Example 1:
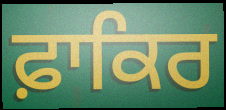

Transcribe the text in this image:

ਫ਼ਾਕਿਰ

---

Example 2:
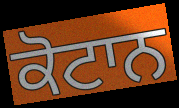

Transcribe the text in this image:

ਕੋਟਾਨ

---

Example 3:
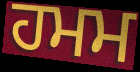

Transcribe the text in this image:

ਹਮਮ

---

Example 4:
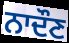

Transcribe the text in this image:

ਨਾਦੌਣ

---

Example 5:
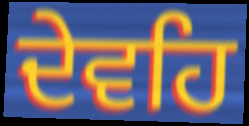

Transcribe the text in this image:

ਦੇਵਹਿ